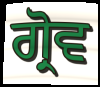
ਗ੍ਰੋਵ